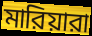
মারিয়ারা